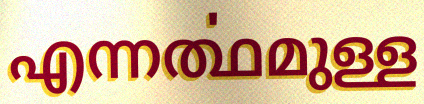
എന്നൎത്ഥമുള്ള